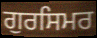
ਗੁਰਸਿਮਰ